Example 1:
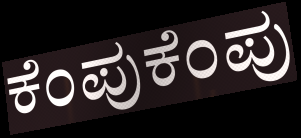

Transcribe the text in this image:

ಕೆಂಪುಕೆಂಪು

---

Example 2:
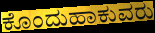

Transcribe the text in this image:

ಕೊಂದುಹಾಕುವರು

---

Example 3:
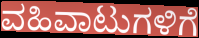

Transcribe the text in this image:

ವಹಿವಾಟುಗಳಿಗೆ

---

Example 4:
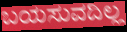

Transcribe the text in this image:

ಬಯಸುವದಿಲ್ಲ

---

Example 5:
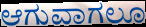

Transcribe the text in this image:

ಆಗುವಾಗಲೂ